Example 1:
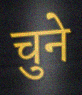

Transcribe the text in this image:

चुने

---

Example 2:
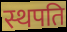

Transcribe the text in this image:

स्थपति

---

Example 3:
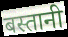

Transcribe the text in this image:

बस्तानी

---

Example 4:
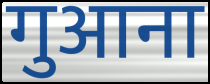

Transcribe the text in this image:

गुआना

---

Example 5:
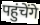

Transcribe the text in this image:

पहुंचेंगे